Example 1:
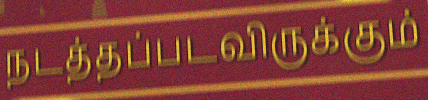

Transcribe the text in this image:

நடத்தப்படவிருக்கும்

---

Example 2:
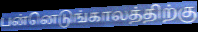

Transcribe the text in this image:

பன்னெடுங்காலத்திற்கு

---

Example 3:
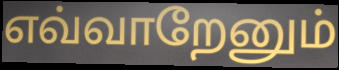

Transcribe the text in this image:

எவ்வாறேனும்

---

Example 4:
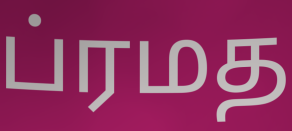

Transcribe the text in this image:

ப்ரமத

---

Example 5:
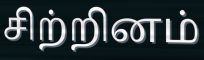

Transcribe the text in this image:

சிற்றினம்